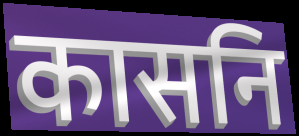
कासनि